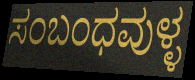
ಸಂಬಂಧವುಳ್ಳ